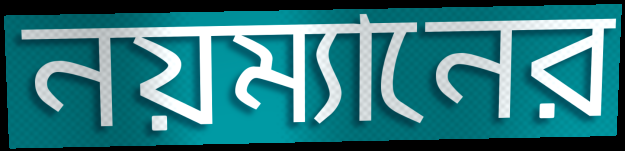
নয়ম্যানের